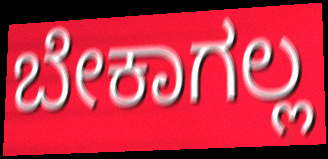
ಬೇಕಾಗಲ್ಲ